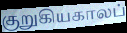
குறுகியகாலப்